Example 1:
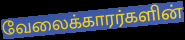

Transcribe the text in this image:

வேலைக்காரர்களின்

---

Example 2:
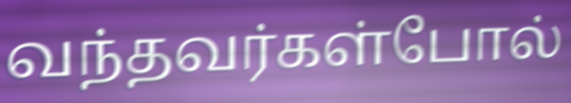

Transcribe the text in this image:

வந்தவர்கள்போல்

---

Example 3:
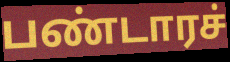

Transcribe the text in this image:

பண்டாரச்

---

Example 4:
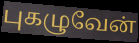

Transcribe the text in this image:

புகழுவேன்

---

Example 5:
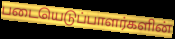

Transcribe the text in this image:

படையெடுப்பாளர்களின்